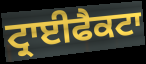
ਟ੍ਰਾਈਫੈਕਟਾ